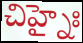
చిహ్నైః